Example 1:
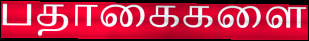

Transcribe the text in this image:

பதாகைகளை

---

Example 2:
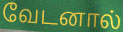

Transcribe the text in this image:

வேடனால்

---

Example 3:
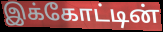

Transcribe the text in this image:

இக்கோட்டின்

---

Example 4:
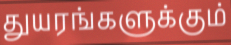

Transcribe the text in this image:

துயரங்களுக்கும்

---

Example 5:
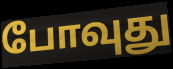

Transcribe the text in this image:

போவுது